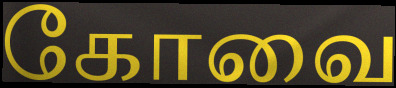
கோவை